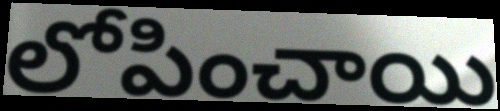
లోపించాయి